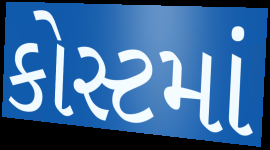
કોસ્ટમાં